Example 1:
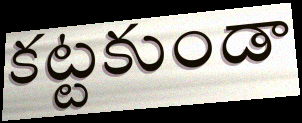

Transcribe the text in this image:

కట్టకుండా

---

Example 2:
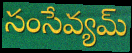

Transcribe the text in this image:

సంసేవ్యమ్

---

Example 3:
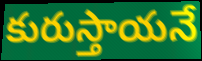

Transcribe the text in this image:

కురుస్తాయనే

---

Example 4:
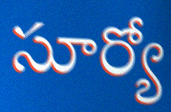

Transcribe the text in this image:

సూర్యో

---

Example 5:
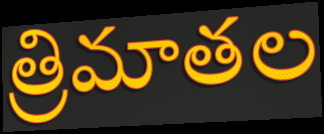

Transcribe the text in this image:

త్రిమాతల